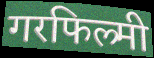
गरफिल्मी